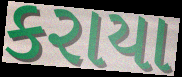
કરાયા